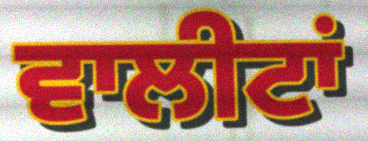
ਵਾਲੀਟਾਂ